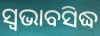
ସ୍ଵଭାବସିଦ୍ଧ